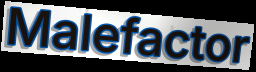
Malefactor